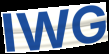
IWG